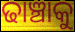
ଢାଞ୍ଚାକୁ